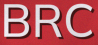
BRC